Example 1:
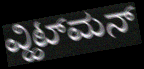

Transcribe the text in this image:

ವ್ಹಿಟ್‌ಮನ್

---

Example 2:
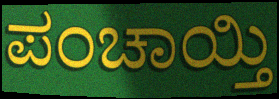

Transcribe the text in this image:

ಪಂಚಾಯ್ತಿ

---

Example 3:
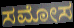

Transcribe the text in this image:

ಸಮೋಸ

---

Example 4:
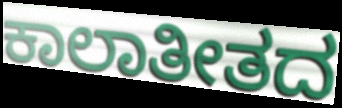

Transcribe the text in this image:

ಕಾಲಾತೀತದ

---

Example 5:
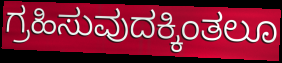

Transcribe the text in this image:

ಗ್ರಹಿಸುವುದಕ್ಕಿಂತಲೂ